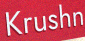
Krushn